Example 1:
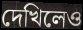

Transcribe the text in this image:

দেখিলেও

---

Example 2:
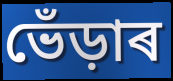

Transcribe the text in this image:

ভেঁড়াৰ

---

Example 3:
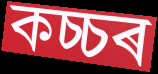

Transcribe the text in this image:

কচ্চৰ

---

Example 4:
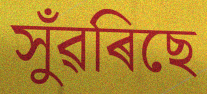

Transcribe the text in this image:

সুঁৱৰিছে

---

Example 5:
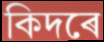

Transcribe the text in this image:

কিদৰে